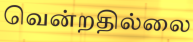
வென்றதில்லை